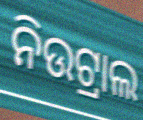
ନିଉଟ୍ରାଲ